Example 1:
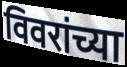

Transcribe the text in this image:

विवरांच्या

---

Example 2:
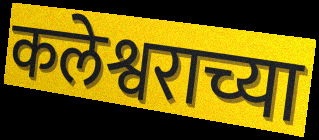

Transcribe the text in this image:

कलेश्वराच्या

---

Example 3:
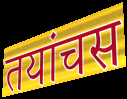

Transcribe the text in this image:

तयांचस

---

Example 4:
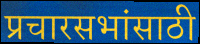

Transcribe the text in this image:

प्रचारसभांसाठी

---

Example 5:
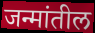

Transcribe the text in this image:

जन्मांतील